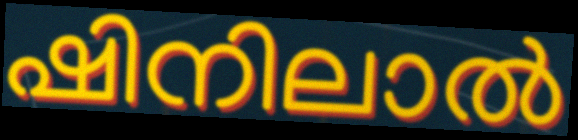
ഷിനിലാൽ